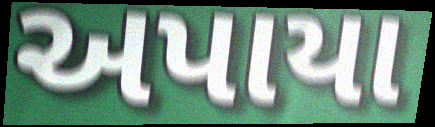
અપાયા